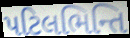
પટિલભિન્તિ